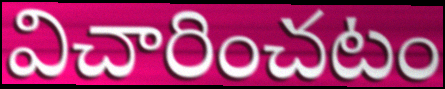
విచారించటం